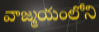
వాజ్మయంలోని